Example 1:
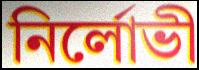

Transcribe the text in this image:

নির্লোভী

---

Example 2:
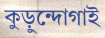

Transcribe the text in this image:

কুড়ুন্দোগাই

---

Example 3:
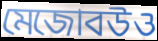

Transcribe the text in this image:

মেজোবউও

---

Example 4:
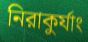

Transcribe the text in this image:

নিরাকুর্যাং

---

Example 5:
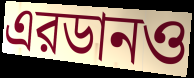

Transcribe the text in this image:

এরডানও